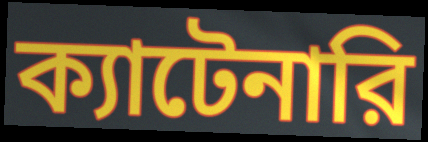
ক্যাটেনারি